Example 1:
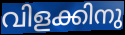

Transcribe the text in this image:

വിളക്കിനു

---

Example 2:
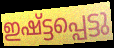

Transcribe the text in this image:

ഇഷ്ട്ടപ്പെട്ടു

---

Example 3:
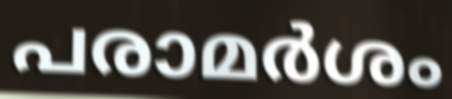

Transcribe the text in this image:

പരാമർശം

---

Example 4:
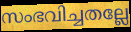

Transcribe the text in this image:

സംഭവിച്ചതല്ലേ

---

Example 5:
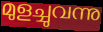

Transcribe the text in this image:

മുളച്ചുവന്നു